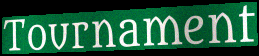
Tournament